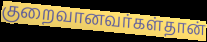
குறைவானவர்கள்தான்